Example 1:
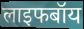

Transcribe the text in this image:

लाइफबॉय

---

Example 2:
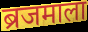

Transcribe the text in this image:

ब्रजमाला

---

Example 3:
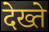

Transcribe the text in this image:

देख्ते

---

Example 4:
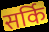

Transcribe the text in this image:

सर्कि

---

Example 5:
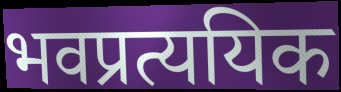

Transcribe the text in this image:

भवप्रत्ययिक